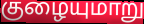
குழையுமாறு